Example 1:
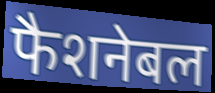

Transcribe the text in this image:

फैशनेबल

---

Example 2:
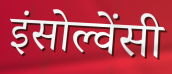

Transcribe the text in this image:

इंसोल्वेंसी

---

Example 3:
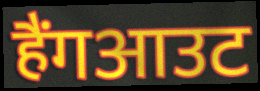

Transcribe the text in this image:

हैंगआउट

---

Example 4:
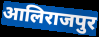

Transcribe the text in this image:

आलिराजपुर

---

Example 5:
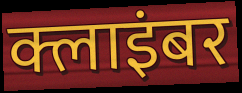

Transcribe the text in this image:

क्लाइंबर